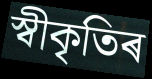
স্বীকৃতিৰ